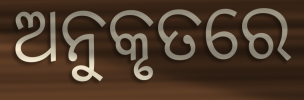
ଅନୁକୃତରେ